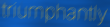
triumphantly